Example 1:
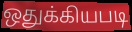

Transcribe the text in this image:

ஒதுக்கியபடி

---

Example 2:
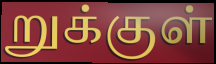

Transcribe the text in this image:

றுக்குள்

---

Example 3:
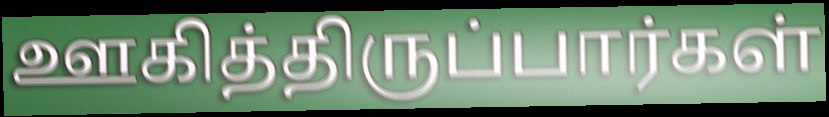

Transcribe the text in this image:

ஊகித்திருப்பார்கள்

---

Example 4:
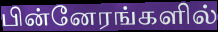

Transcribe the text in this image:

பின்னேரங்களில்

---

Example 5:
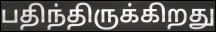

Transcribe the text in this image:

பதிந்திருக்கிறது